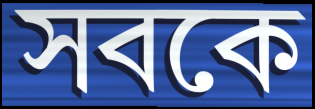
সবকে